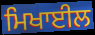
ਮਿਖਾਈਲ